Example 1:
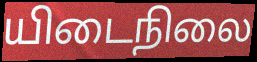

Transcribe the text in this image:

யிடைநிலை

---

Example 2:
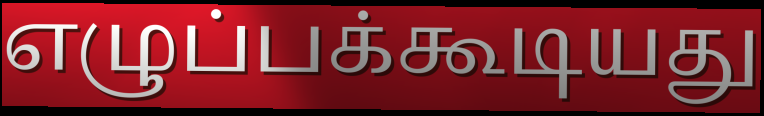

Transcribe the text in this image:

எழுப்பக்கூடியது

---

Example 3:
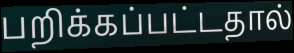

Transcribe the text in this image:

பறிக்கப்பட்டதால்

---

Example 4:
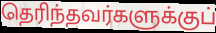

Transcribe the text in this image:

தெரிந்தவர்களுக்குப்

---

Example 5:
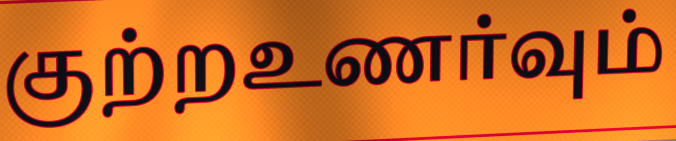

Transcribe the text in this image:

குற்றஉணர்வும்